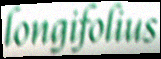
longifolius